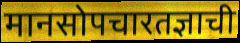
मानसोपचारतज्ञाची